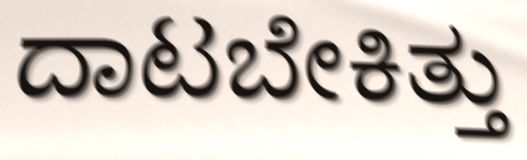
ದಾಟಬೇಕಿತ್ತು